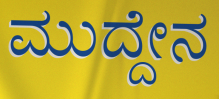
ಮುದ್ದೇನ